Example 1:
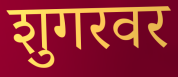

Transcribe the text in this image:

शुगरवर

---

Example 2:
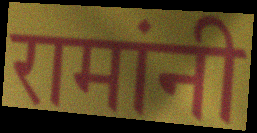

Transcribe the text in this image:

रामांनी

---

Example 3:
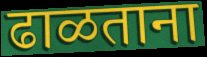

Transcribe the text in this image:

ढाळताना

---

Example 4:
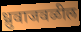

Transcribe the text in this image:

ध्रुवाजवळील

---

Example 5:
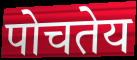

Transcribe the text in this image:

पोचतेय